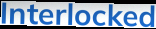
Interlocked